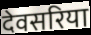
देवसरिया